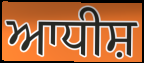
ਆਧੀਸ਼